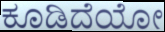
ಕೂಡಿದೆಯೋ